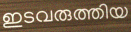
ഇടവരുത്തിയ